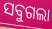
ସବୁଗଲା